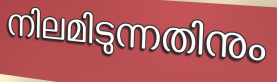
നിലമിടുന്നതിനും